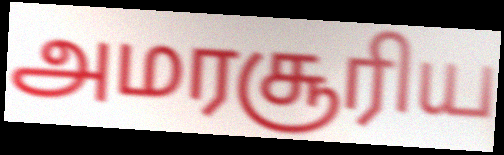
அமரசூரிய